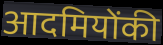
आदमियोंकी